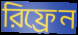
রিফ্রেন